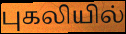
புகலியில்